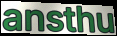
ansthu